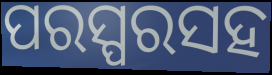
ପରସ୍ପରସହ